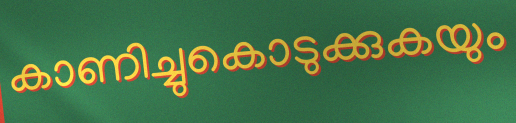
കാണിച്ചുകൊടുക്കുകയും